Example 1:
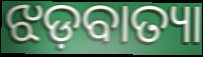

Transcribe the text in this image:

ଝଡ଼ବାତ୍ୟା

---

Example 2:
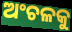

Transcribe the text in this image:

ଅଂଚଳକୁ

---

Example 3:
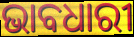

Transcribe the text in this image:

ଭାବଧାରୀ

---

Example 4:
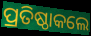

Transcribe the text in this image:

ପ୍ରତିଷ୍ଠାକଲେ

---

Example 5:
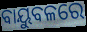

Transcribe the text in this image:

ବାୟୁବଳରେ